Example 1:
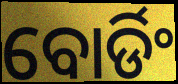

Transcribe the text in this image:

ବୋର୍ଡିଂ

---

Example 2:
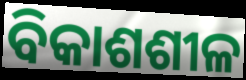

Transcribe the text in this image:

ବିକାଶଶୀଳ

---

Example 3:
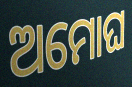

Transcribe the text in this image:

ଅମୋଘ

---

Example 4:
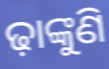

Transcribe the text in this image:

ଢ଼ାଙ୍କୁଣି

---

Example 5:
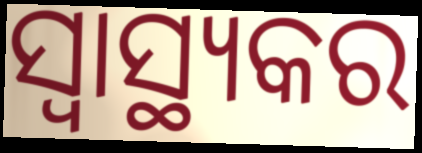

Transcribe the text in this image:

ସ୍ୱାସ୍ଥ୍ୟକର